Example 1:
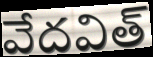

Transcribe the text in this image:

వేదవిత్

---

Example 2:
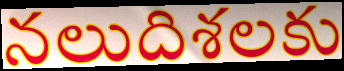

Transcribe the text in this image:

నలుదిశలకు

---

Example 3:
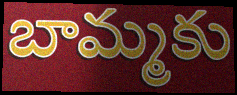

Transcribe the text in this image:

బామ్మకు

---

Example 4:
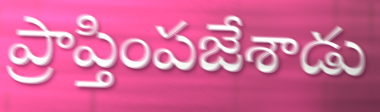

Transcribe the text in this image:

ప్రాప్తింపజేశాడు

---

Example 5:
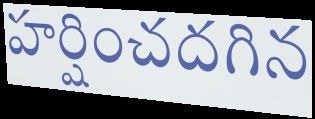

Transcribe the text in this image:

హర్షించదగిన